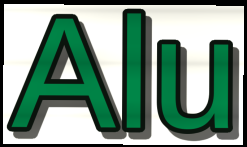
Alu